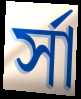
র্সা